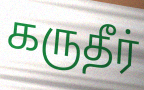
கருதீர்